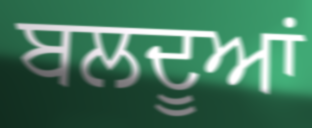
ਬਲਦੂਆਂ